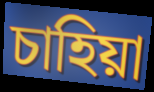
চাহিয়া